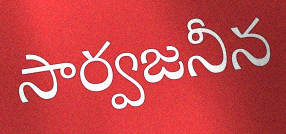
సార్వజనీన